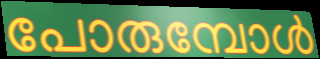
പോരുമ്പോൾ